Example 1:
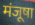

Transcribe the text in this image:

मंजूषा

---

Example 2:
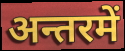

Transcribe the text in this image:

अन्तरमें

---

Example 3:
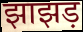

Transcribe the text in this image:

झाझड़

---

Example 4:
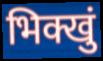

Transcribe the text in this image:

भिक्खुं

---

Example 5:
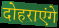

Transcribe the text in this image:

दोहराएंगे